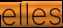
elles